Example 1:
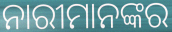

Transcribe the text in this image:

ନାରୀମାନଙ୍କର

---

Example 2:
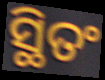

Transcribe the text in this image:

ସ୍ଥିତଂ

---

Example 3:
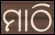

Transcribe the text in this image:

ମାଠି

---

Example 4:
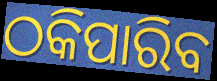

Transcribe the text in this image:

ଠକିପାରିବ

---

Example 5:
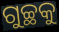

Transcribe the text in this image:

ଗୁଚ୍ଛକୁ